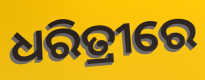
ଧରିତ୍ରୀରେ